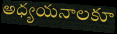
అధ్యయనాలకూ